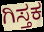
ಗಿಸ್ತಕ